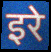
इरे